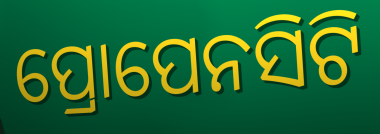
ପ୍ରୋପେନସିଟି